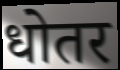
धोतर